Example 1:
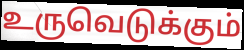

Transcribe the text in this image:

உருவெடுக்கும்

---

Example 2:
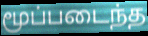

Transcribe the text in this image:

மூப்படைந்த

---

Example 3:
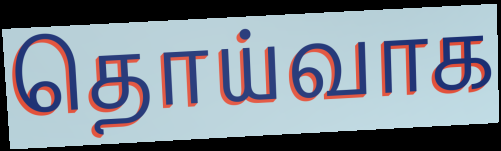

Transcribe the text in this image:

தொய்வாக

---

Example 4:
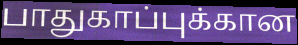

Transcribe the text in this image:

பாதுகாப்புக்கான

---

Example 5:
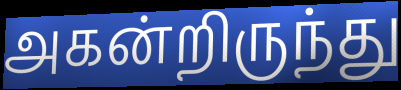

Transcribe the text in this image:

அகன்றிருந்து